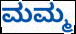
ಮಮ್ಮ